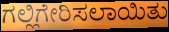
ಗಲ್ಲಿಗೇರಿಸಲಾಯಿತು